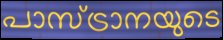
പാസ്ട്രാനയുടെ